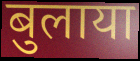
बुलाया